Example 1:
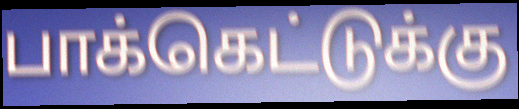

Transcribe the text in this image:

பாக்கெட்டுக்கு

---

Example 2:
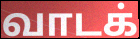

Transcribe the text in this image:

வாடக்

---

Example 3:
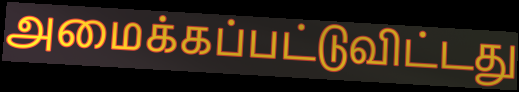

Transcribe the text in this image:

அமைக்கப்பட்டுவிட்டது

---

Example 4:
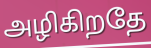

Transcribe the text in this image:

அழிகிறதே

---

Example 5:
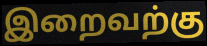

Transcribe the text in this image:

இறைவற்கு